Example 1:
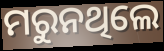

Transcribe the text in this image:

ମରୁନଥିଲେ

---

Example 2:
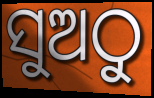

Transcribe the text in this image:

ସୁଅଠୁ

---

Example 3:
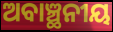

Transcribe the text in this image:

ଅବାଞ୍ଛନୀୟ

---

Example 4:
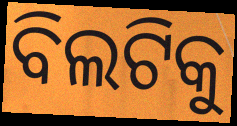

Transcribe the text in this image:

ବିଲଟିକୁ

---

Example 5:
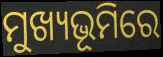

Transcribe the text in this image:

ମୁଖ୍ୟଭୂମିରେ